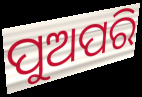
ପୁଅପରି